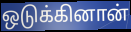
ஒடுக்கினான்